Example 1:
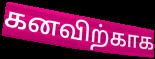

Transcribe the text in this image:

கனவிற்காக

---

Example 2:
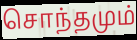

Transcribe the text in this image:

சொந்தமும்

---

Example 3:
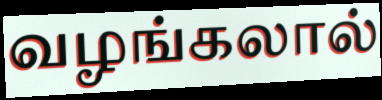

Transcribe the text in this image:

வழங்கலால்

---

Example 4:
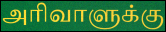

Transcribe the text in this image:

அரிவாளுக்கு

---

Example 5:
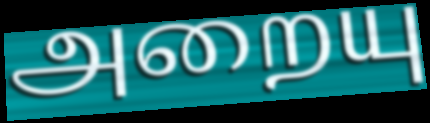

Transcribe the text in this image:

அறையு